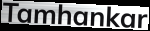
Tamhankar